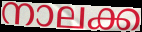
നാലക്ക